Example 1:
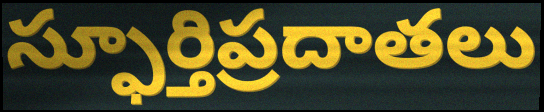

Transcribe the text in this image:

స్ఫూర్తిప్రదాతలు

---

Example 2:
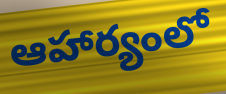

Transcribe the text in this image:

ఆహార్యంలో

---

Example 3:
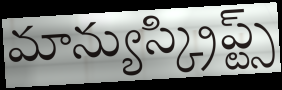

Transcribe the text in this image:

మాన్యుస్క్రిప్ట్స్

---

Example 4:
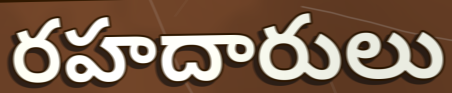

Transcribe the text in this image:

రహదారులు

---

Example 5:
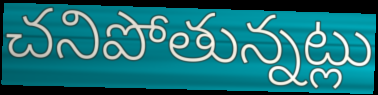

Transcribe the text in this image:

చనిపోతున్నట్లు